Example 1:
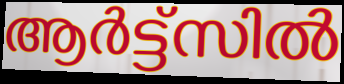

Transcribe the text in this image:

ആർട്ട്സിൽ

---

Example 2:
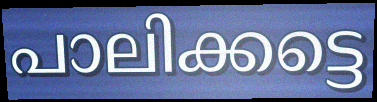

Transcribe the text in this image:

പാലിക്കട്ടെ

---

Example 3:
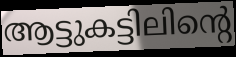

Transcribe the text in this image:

ആട്ടുകട്ടിലിന്റെ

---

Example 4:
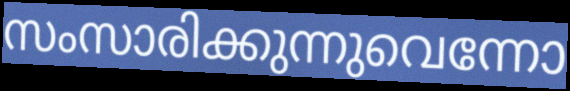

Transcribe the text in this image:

സംസാരിക്കുന്നുവെന്നോ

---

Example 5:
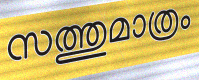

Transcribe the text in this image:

സത്തുമാത്രം